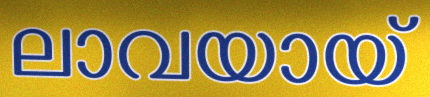
ലാവയായ്